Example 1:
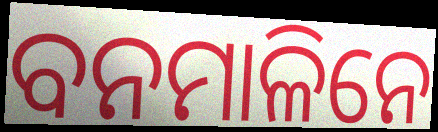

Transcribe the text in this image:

ବନମାଳିନେ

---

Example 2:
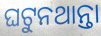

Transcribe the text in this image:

ଘଟୁନଥାନ୍ତା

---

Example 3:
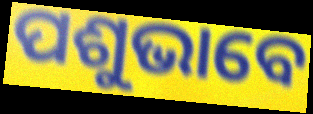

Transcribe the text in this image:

ପଶୁଭାବେ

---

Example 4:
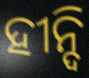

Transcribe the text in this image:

ହୀନ୍ଦି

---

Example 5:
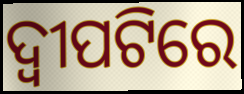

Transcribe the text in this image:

ଦ୍ୱୀପଟିରେ